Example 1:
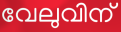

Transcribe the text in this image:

വേലുവിന്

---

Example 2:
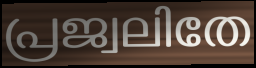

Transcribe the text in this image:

പ്രജ്വലിതേ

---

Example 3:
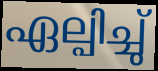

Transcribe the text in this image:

ഏല്പിച്ചു്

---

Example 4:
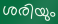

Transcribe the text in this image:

ശരിയും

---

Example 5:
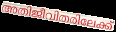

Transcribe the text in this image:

അതിജീവിതരിലേക്ക്